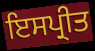
ਇਸਪ੍ਰੀਤ